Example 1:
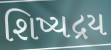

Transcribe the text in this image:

શિષ્યદ્રય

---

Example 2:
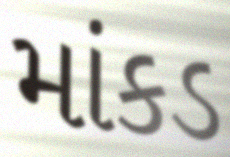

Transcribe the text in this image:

માંકડ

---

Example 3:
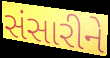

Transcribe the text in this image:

સંસારીને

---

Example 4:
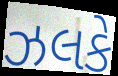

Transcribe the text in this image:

ઝલકે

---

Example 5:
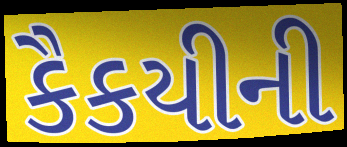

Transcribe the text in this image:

કૈકયીની